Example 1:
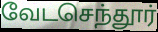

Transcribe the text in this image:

வேடசெந்தூர்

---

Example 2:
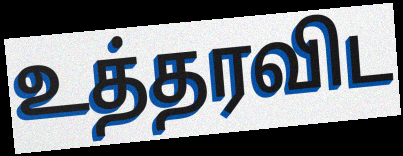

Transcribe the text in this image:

உத்தரவிட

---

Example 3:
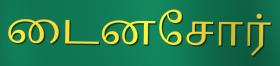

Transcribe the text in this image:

டைனசோர்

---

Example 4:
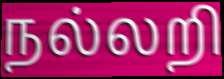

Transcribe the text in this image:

நல்லறி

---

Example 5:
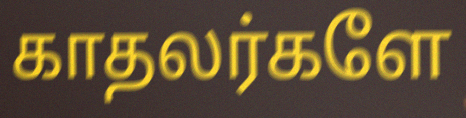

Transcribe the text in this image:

காதலர்களே